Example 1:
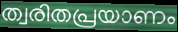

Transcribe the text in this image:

ത്വരിതപ്രയാണം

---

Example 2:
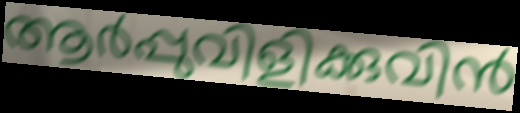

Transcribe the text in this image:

ആർപ്പുവിളിക്കുവിൻ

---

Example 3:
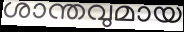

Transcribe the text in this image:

ശാന്തവുമായ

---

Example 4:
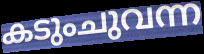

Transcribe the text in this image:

കടുംചുവന്ന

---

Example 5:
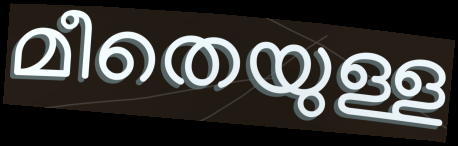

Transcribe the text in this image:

മീതെയുള്ള